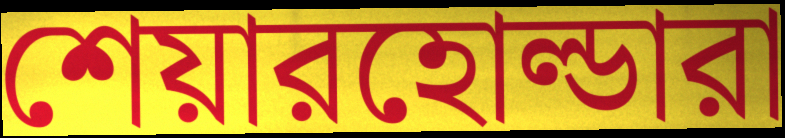
শেয়ারহোল্ডারা